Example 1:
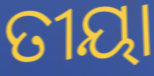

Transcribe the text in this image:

ତୀୟା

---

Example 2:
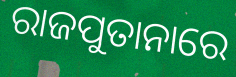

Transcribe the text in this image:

ରାଜପୁତାନାରେ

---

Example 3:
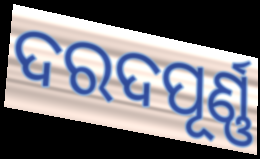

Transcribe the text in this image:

ଦରଦପୂର୍ଣ୍ଣ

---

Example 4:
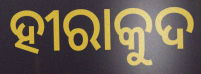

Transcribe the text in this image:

ହୀରାକୁଦ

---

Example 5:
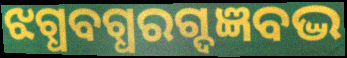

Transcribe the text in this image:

ଝଗ୍ଧବଗ୍ଧରଗ୍ଦଜ୍ଞବଦ୍ଭ